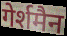
गेर्शमैन